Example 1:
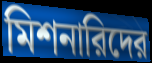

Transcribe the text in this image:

মিশনারিদের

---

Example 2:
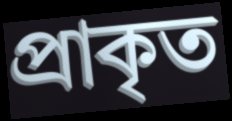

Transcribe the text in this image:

প্রাকৃত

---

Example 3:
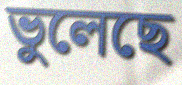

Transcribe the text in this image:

ভুলেছে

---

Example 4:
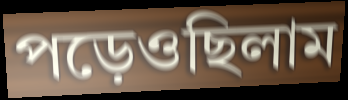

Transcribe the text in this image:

পড়েওছিলাম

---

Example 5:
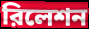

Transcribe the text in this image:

রিলেশন